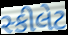
સ્કીલેટ